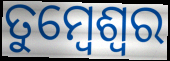
ତୁମ୍ବେଶ୍ଵର